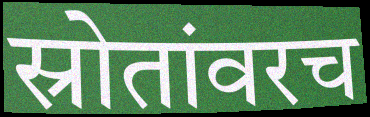
स्रोतांवरच